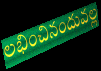
లభించినందువల్ల